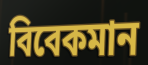
বিবেকমান